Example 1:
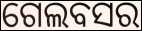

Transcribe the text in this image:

ଗେଲବସର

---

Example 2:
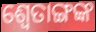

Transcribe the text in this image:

ଶ୍ୱେତାଙ୍ଗଙ୍କ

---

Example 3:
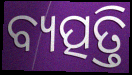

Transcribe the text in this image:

ବ୍ୟତ୍ପତ୍ତି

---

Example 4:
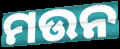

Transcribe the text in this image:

ମଉନ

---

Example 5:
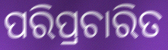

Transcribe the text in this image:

ପରିପ୍ରଚାରିତ